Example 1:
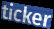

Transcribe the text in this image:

ticker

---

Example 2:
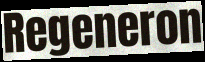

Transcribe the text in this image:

Regeneron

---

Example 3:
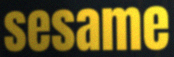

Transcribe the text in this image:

sesame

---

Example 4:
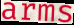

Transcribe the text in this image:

arms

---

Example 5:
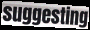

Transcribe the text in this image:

suggesting